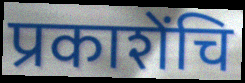
प्रकाशेंचि